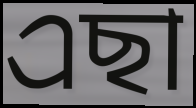
এছা